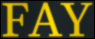
FAY